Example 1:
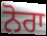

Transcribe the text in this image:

ਨੋਰਾ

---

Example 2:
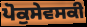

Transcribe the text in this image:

ਪੋਕੁਸੇਵਸਕੀ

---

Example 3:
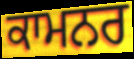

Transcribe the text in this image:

ਕਾਮਨਰ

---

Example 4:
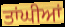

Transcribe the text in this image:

ਤਾਂਘੀਆਂ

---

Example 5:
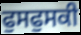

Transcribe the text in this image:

ਫੁਸਫੁਸਕੀ